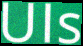
UIs